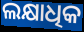
ଲକ୍ଷାଧିକ